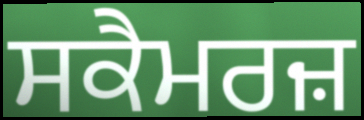
ਸਕੈਮਰਜ਼